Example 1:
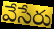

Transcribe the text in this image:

వేసేరు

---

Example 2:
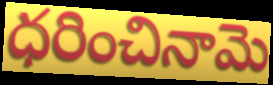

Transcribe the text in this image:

ధరించినామె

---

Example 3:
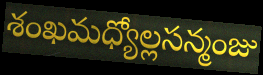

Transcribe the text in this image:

శంఖమధ్యోల్లసన్మంజు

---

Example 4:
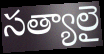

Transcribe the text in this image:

సత్యాలై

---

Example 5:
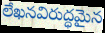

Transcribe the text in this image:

లేఖనవిరుద్ధమైన